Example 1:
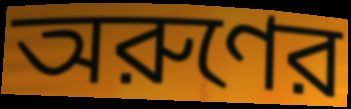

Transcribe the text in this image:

অরুণের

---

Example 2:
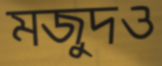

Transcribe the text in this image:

মজুদও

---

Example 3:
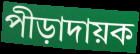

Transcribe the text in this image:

পীড়াদায়ক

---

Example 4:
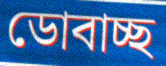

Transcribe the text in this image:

ডোবাচ্ছ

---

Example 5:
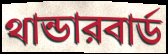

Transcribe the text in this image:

থান্ডারবার্ড